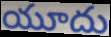
యూదు